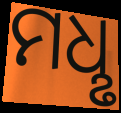
ମଧୢ